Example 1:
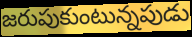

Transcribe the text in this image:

జరుపుకుంటున్నపుడు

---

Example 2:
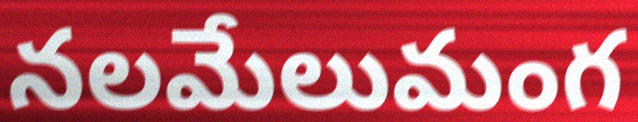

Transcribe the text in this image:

నలమేలుమంగ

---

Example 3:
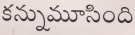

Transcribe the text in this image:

కన్నుమూసింది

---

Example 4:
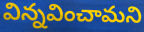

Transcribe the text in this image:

విన్నవించామని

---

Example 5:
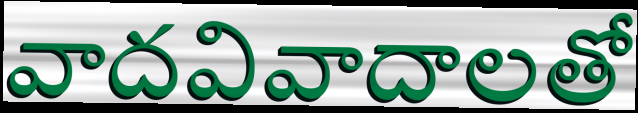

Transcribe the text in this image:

వాదవివాదాలతో